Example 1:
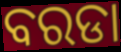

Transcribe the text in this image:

ବରଡା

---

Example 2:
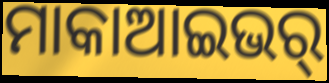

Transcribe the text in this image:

ମାକାଆଇଭର୍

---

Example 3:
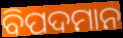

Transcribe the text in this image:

ବିପଦମାନ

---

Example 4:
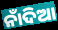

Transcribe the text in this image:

ନାଁଦିଆ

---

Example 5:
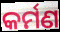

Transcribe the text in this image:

କର୍ମଣ